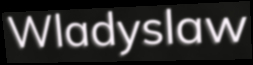
Wladyslaw